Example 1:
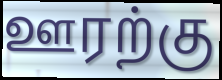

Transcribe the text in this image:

ஊரற்கு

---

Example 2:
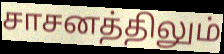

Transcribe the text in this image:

சாசனத்திலும்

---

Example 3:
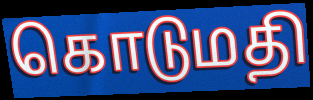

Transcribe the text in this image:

கொடுமதி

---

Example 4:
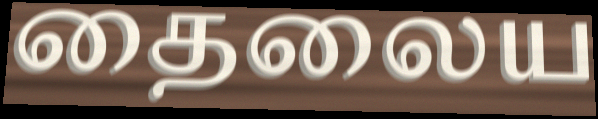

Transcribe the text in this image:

தைலைய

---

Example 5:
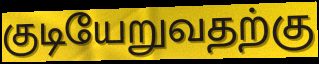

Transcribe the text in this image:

குடியேறுவதற்கு